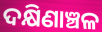
ଦକ୍ଷିଣାଞ୍ଚଳ